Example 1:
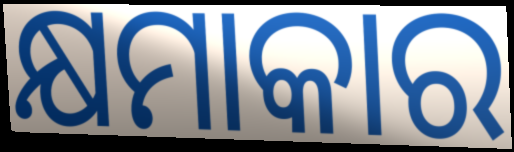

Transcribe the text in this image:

କ୍ଷମାକାର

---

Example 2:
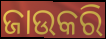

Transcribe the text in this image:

ଜାଉକରି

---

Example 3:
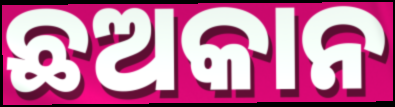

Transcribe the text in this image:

ଛଅକାନ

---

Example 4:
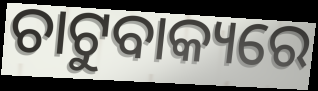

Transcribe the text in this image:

ଚାଟୁବାକ୍ୟରେ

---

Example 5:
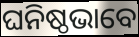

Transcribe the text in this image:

ଘନିଷ୍ଠଭାବେ